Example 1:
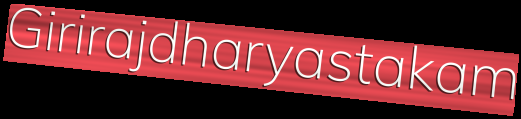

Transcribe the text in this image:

Girirajdharyastakam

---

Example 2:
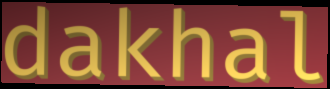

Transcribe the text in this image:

dakhal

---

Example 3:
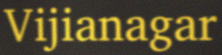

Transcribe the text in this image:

Vijianagar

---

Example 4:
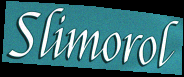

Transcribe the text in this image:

Slimorol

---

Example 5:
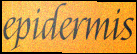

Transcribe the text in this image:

epidermis